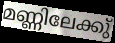
മണ്ണിലേക്കു്